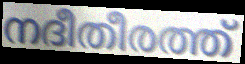
നദീതീരത്ത്